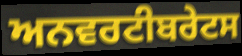
ਅਨਵਰਟੀਬਰੇਟਸ